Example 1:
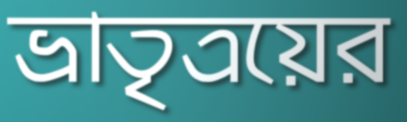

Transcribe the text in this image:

ভ্রাতৃত্রয়ের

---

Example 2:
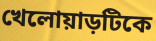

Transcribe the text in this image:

খেলোয়াড়টিকে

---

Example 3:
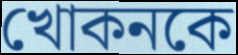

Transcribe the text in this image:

খোকনকে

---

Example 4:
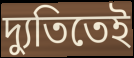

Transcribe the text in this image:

দ্যুতিতেই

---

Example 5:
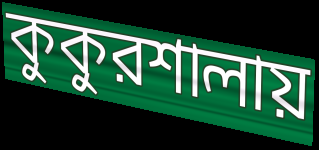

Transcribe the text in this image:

কুকুরশালায়